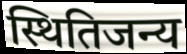
स्थितिजन्य